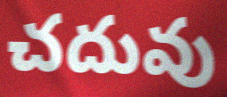
చదువు